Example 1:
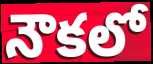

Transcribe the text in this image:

నౌకలో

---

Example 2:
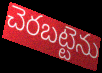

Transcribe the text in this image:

చెరబట్టెను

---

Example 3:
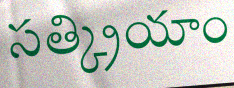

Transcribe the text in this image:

సత్క్రియాం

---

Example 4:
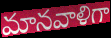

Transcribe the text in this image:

మానవాళిగా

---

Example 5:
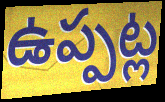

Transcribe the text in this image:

ఉప్పట్ల